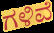
ಗಳಿವೆ